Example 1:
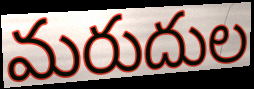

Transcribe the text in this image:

మరుదుల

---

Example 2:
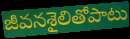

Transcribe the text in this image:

జీవనశైలితోపాటు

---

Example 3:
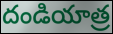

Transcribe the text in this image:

దండియాత్ర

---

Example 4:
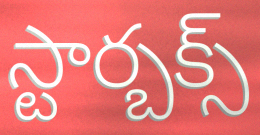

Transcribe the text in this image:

స్టార్బక్స్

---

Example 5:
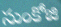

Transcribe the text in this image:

సుంకోజి